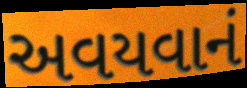
અવયવાનં